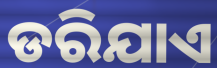
ଡରିଯାଏ